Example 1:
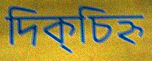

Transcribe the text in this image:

দিক্‌চিহ্ন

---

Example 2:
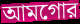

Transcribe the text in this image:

আমগোর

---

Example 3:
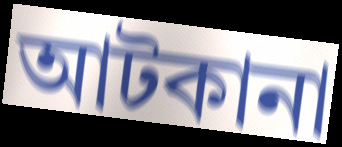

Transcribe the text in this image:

আটকানা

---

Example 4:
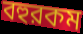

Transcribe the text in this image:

বহুরকম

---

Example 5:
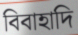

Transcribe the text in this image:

বিবাহাদি